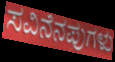
ಸವಿನೆನಪುಗಳು